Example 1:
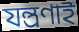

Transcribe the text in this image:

যন্ত্রণাই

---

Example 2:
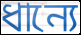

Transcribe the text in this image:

ধান্যে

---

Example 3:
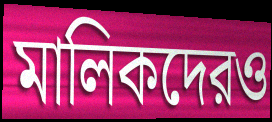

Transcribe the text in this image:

মালিকদেরও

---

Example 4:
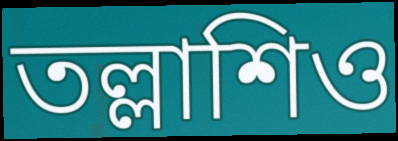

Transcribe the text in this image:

তল্লাশিও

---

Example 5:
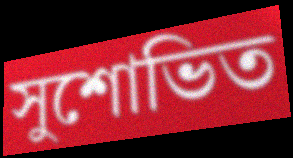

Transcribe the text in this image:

সুশোভিত